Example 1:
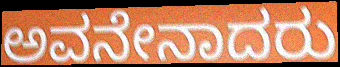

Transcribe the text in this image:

ಅವನೇನಾದರು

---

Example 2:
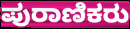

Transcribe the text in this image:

ಪುರಾಣಿಕರು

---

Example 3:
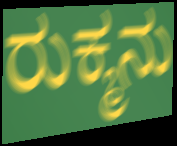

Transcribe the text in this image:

ರುಕ್ಮನು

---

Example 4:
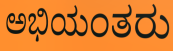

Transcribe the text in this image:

ಅಭಿಯಂತರು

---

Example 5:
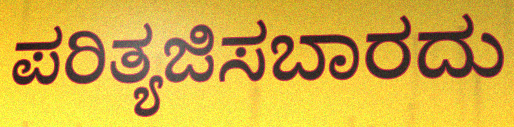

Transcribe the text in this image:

ಪರಿತ್ಯಜಿಸಬಾರದು